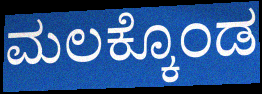
ಮಲಕ್ಕೊಂಡ